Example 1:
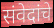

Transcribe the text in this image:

संवेदांचे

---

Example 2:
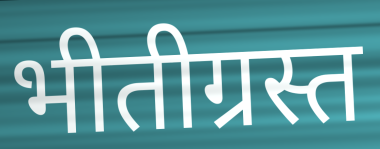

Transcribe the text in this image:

भीतीग्रस्त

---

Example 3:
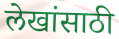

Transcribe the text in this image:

लेखांसाठी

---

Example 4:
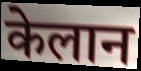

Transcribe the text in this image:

केलान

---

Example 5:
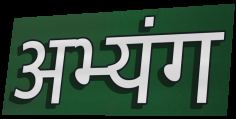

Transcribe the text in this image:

अभ्यंग